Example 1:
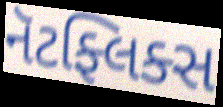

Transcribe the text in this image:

નૅટફ્લિક્સ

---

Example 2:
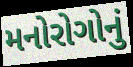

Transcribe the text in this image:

મનોરોગોનું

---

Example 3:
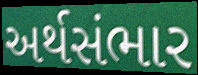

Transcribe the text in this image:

અર્થસંભાર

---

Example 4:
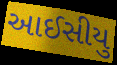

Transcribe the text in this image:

આઈસીયુ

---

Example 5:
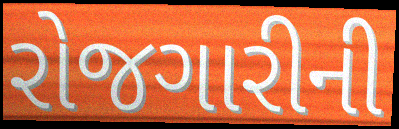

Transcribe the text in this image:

રોજગારીની